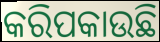
କରିପକାଉଛି